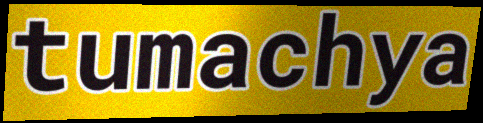
tumachya